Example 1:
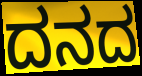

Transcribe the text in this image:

ದನದ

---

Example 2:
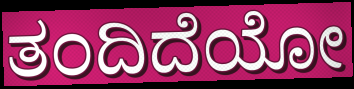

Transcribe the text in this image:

ತಂದಿದೆಯೋ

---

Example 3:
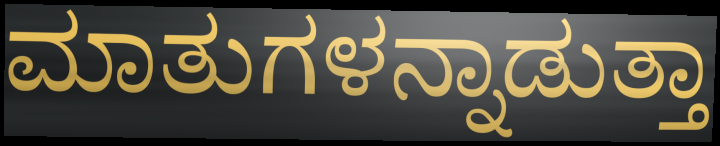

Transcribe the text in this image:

ಮಾತುಗಳನ್ನಾಡುತ್ತಾ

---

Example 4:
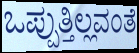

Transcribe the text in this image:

ಒಪ್ಪುತ್ತಿಲ್ಲವಂತೆ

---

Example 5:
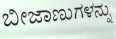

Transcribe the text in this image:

ಬೀಜಾಣುಗಳನ್ನು